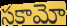
సకామో